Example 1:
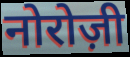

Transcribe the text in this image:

नोरोज़ी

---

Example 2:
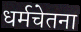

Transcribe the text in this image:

धर्मचेतना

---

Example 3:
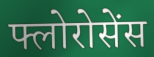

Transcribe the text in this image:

फ्लोरोसेंस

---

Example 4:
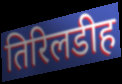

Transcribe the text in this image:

तिरिलडीह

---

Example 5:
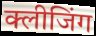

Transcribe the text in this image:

क्‍लीजिंग